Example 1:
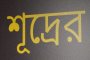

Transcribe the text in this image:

শূদ্রের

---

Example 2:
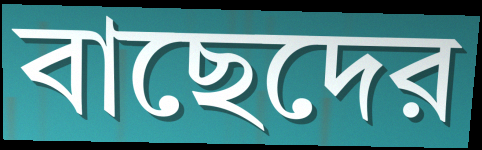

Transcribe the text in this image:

বাছেদের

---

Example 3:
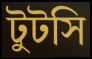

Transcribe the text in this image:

টুটসি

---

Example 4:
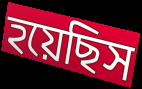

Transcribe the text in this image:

হয়েছিস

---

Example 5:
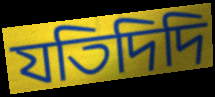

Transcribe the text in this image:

যতিদিদি